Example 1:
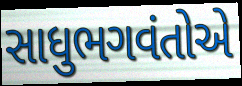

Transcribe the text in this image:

સાધુભગવંતોએ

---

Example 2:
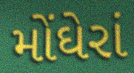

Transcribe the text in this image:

મોંઘેરાં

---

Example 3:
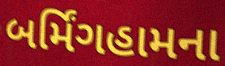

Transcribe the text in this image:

બર્મિંગહામના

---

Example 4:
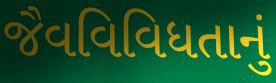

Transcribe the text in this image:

જૈવવિવિધતાનું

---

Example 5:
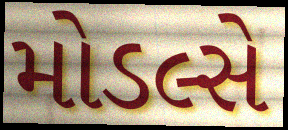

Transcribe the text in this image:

મોડલ્સે